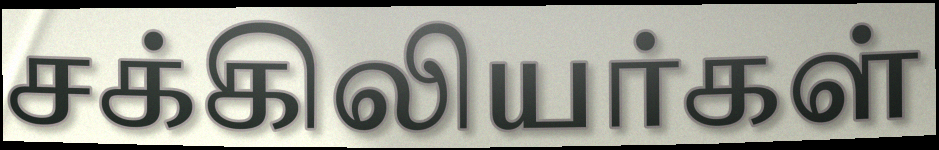
சக்கிலியர்கள்